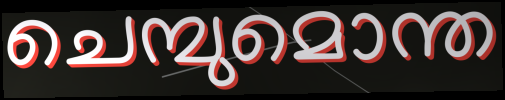
ചെമ്പുമൊന്ത